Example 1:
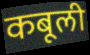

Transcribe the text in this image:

कबूली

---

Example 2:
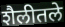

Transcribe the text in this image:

शैलीतले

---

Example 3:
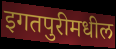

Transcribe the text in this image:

इगतपुरीमधील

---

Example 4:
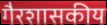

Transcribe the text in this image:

गैरशासकीय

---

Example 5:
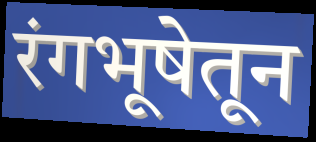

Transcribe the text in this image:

रंगभूषेतून